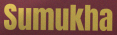
Sumukha